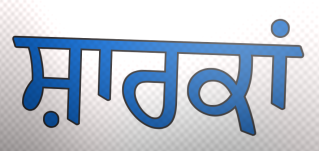
ਸ਼ਾਰਕਾਂ